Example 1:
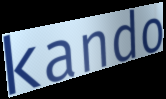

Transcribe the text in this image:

kando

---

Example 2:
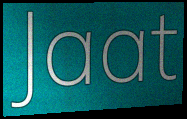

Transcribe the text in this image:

Jaat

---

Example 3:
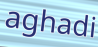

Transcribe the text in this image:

aghadi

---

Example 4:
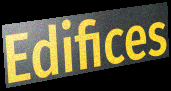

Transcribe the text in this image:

Edifices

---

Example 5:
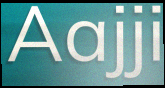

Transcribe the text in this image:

Aajji